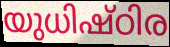
യുധിഷ്ഠിര